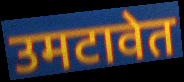
उमटावेत